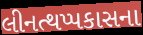
લીનત્થપ્પકાસના